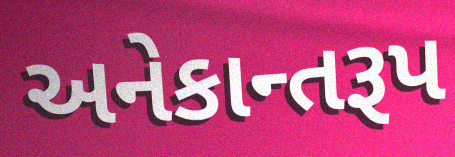
અનેકાન્તરૂપ